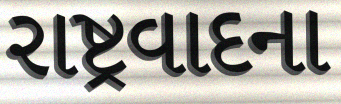
રાષ્ટ્રવાદના